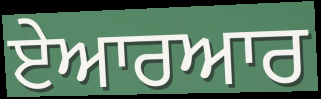
ਏਆਰਆਰ